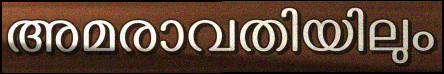
അമരാവതിയിലും